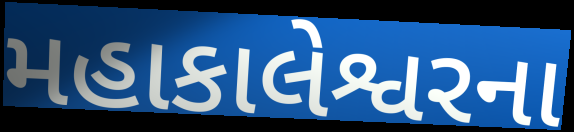
મહાકાલેશ્વરના